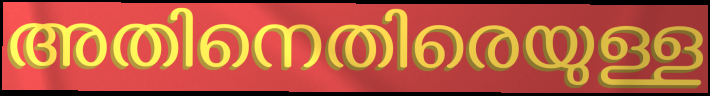
അതിനെതിരെയുള്ള